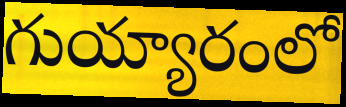
గుయ్యారంలో